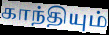
காந்தியும்